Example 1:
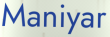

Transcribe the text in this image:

Maniyar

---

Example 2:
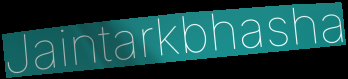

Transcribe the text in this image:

Jaintarkbhasha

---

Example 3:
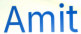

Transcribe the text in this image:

Amit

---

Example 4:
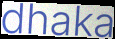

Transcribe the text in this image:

dhaka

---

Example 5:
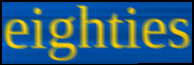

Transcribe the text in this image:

eighties